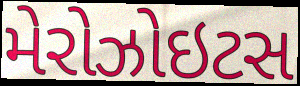
મેરોઝોઇટસ